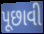
પૂછાવી